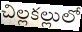
చిల్లకల్లులో